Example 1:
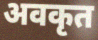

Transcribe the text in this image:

अवकृत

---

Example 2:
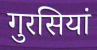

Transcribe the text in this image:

गुरसियां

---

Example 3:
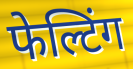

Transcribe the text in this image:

फेल्टिंग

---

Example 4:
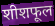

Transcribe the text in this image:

शीशफूल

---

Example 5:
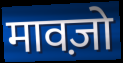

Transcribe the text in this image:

मावज़ो